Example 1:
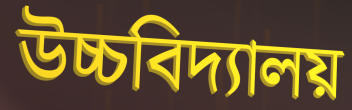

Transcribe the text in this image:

উচ্চবিদ্যালয়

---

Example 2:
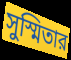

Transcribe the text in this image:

সুস্মিতার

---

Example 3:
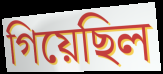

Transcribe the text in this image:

গিয়েছিল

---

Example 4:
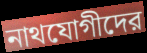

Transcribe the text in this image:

নাথযোগীদের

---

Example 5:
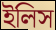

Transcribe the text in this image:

ইলিস